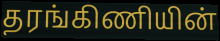
தரங்கிணியின்